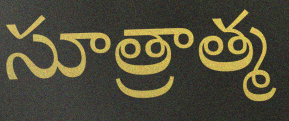
సూత్రాత్మ